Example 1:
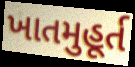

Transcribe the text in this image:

ખાતમુહૂર્ત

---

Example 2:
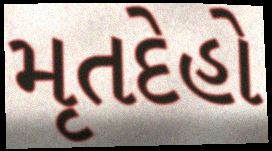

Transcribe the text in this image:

મૃતદેહો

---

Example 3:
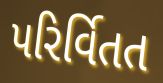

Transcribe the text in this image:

પરિર્વિતત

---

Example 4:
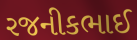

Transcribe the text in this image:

રજનીકભાઈ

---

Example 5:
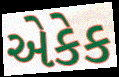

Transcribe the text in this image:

એકેક